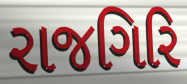
રાજગિરિ